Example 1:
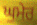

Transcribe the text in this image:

ਘੁਮੇਰ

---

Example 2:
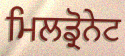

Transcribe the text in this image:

ਮਿਲਡ੍ਰੋਨੇਟ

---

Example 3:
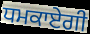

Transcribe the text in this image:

ਧਮਕਾਏਗੀ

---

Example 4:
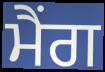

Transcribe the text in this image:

ਮੈਂਗ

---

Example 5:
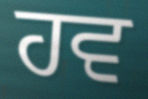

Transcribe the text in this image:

ਹਵ